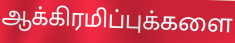
ஆக்கிரமிப்புக்களை